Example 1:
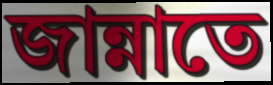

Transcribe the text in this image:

জান্নাতে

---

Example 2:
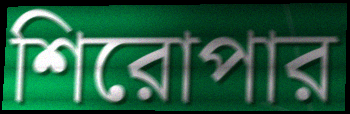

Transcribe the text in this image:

শিরোপার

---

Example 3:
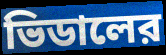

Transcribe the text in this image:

ভিডালের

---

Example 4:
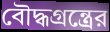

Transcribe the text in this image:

বৌদ্ধগ্রন্ত্রের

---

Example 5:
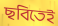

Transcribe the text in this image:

ছবিতেই